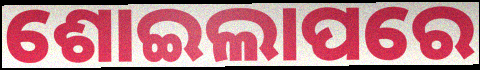
ଶୋଇଲାପରେ